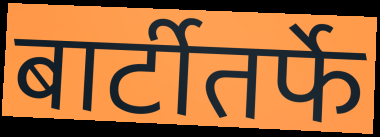
बार्टीतर्फे